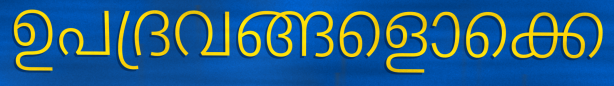
ഉപദ്രവങ്ങളൊക്കെ